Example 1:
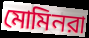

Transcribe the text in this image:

মোমিনরা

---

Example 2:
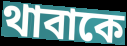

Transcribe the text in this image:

থাবাকে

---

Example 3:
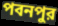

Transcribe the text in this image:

পবনপুর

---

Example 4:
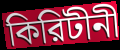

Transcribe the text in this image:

কিরিটীনী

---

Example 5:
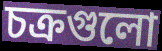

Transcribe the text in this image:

চক্রগুলো